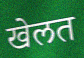
खेलत